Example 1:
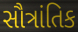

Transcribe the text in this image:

સૌત્રાંતિક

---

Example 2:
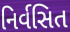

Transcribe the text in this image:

નિર્વસિત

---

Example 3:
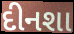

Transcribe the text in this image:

દીનશા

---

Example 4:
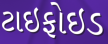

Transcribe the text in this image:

ટાઇફોઇડ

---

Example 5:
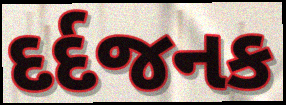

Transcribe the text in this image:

દર્દજનક